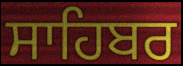
ਸਾਹਿਬਰ